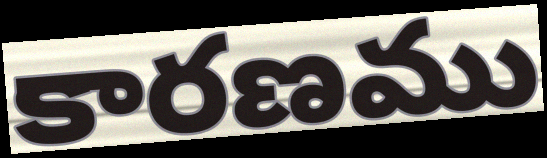
కారణము